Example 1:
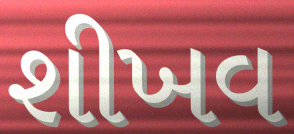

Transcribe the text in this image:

શીખવ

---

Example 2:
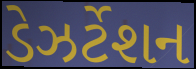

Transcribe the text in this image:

ડેઝર્ટેશન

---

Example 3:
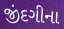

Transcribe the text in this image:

જીંદગીના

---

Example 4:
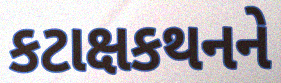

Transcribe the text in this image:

કટાક્ષકથનને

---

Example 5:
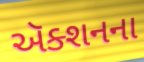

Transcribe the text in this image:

ઍક્શનના